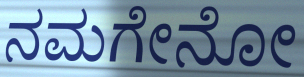
ನಮಗೇನೋ